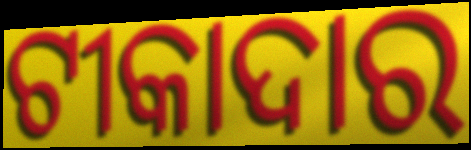
ଟୀକାଦାର